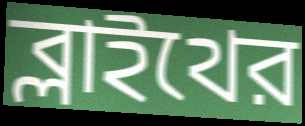
ব্লাইথের